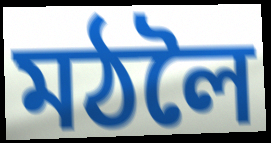
মঠলৈ